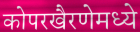
कोपरखैरणेमध्ये